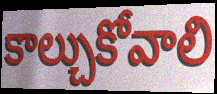
కాల్చుకోవాలి